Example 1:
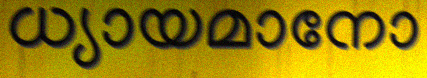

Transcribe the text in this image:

ധ്യായമാനോ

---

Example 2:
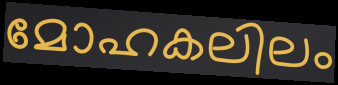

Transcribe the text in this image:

മോഹകലിലം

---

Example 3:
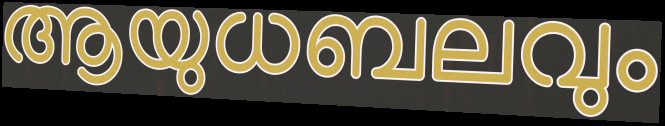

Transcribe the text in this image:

ആയുധബലവും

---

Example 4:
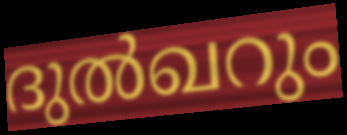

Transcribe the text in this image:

ദുൽഖറും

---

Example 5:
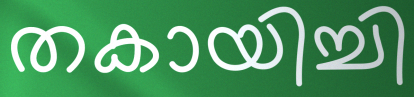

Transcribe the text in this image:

തകായിച്ചി